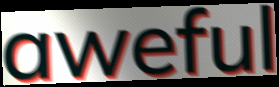
aweful